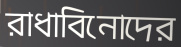
রাধাবিনোদের